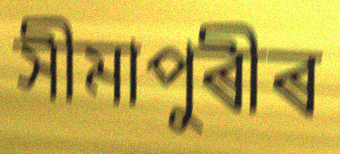
সীমাপুৰীৰ